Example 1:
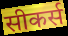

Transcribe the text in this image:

सीकर्स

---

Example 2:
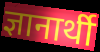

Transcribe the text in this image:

ज्ञानार्थी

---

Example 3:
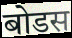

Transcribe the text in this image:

बोडस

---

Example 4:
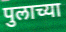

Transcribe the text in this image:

पुलाच्या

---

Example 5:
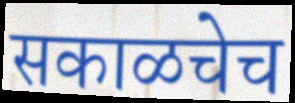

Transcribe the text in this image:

सकाळचेच